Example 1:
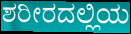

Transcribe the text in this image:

ಶರೀರದಲ್ಲಿಯ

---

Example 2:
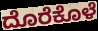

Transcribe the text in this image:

ದೊರೆಕೊಳೆ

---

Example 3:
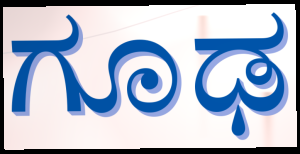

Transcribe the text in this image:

ಗೂಢ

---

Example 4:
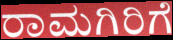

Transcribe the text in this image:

ರಾಮಗಿರಿಗೆ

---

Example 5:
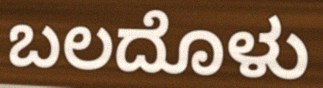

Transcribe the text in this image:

ಬಲದೊಳು